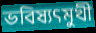
ভবিষ্যৎমুখী